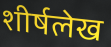
शीर्षलेख